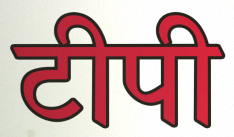
टीपी